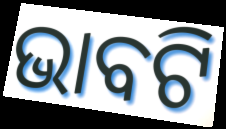
ଭାବଟି